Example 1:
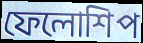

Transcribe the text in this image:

ফেলোশিপ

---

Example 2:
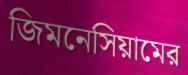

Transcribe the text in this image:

জিমনেসিয়ামের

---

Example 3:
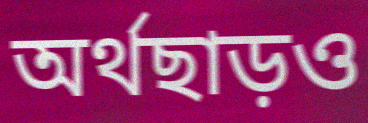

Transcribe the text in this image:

অর্থছাড়ও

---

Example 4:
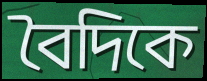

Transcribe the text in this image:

বৈদিকে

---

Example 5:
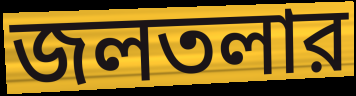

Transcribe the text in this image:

জলতলার